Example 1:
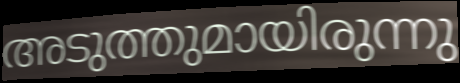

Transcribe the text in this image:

അടുത്തുമായിരുന്നു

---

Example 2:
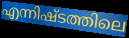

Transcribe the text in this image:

എന്നിഷ്ടത്തിലെ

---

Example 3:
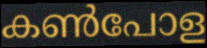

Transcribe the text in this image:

കൺപോള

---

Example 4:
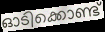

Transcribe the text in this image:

ഓടിക്കൊണ്ട്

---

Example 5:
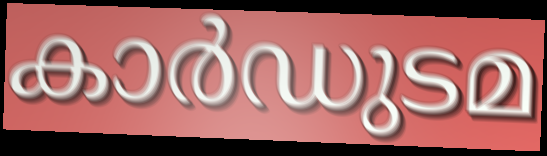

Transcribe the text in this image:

കാർഡുടമ